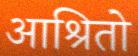
आश्रितो